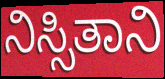
ನಿಸ್ಸಿತಾನಿ